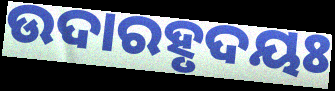
ଉଦାରହୃଦୟଃ